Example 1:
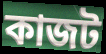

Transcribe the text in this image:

কাজট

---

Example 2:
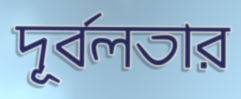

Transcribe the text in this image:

দূর্বলতার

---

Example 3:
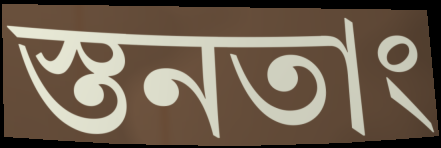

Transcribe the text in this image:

স্তনতাং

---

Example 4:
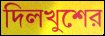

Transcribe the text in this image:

দিলখুশের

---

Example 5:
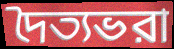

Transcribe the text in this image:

দৈত্যভরা